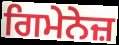
ਗਿਮੇਨੇਜ਼